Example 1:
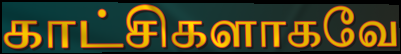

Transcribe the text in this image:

காட்சிகளாகவே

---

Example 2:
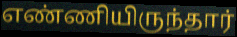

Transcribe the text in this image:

எண்ணியிருந்தார்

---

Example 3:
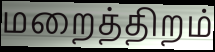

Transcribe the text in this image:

மறைத்திறம்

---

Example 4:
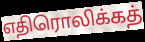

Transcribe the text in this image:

எதிரொலிக்கத்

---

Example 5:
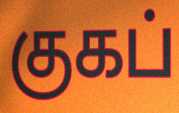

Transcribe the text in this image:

குகப்